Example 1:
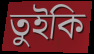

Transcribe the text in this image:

তুইকি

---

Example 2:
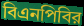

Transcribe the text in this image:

বিএনপিবির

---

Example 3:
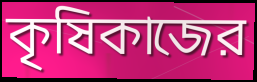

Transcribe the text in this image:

কৃষিকাজের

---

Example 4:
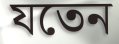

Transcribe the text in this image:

যতেন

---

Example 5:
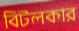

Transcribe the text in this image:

বিটলকার